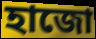
হাজো